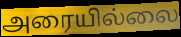
அரையில்லை